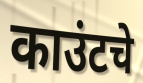
काउंटचे